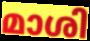
മാശി